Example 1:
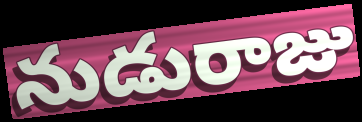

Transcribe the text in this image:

నుడురాజు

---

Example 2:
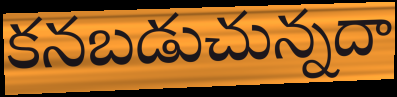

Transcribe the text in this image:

కనబడుచున్నదా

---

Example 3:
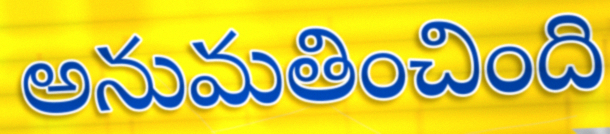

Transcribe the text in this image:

అనుమతించింది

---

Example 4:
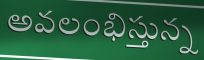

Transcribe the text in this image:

అవలంభిస్తున్న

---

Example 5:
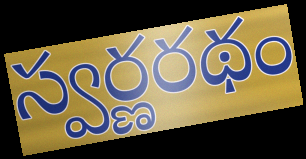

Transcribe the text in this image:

స్వర్ణరథం